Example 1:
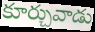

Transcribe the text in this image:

కూర్చువాడు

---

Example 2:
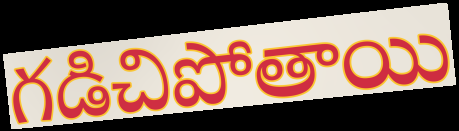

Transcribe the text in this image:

గడిచిపోతాయి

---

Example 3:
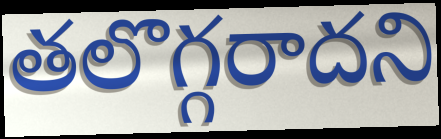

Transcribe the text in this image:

తలొగ్గరాదని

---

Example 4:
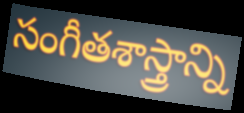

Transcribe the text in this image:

సంగీతశాస్త్రాన్ని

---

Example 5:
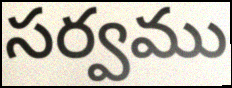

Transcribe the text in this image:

సర్వము